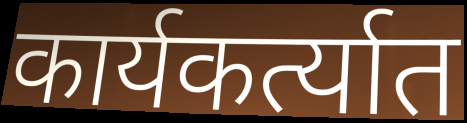
कार्यकर्त्यात